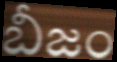
బీజం